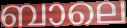
ബാലെ